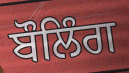
ਬੌਲਿੰਗ